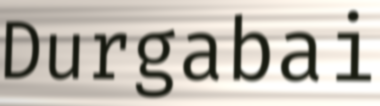
Durgabai